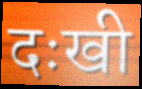
दःखी